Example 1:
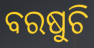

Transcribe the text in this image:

ବରଷୁଚି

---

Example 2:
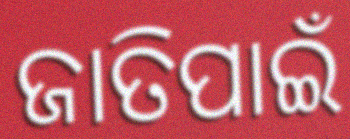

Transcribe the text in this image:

ଜାତିପାଇଁ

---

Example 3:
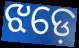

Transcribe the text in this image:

ଝଡ଼େ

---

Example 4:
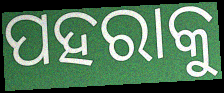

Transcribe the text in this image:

ପହରାକୁ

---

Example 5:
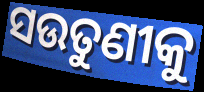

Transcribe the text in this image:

ସଉତୁଣୀକୁ